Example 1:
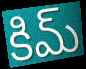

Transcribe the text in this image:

కిమ్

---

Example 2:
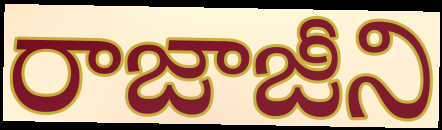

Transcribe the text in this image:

రాజాజీని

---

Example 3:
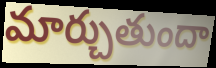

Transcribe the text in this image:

మార్చుతుందా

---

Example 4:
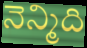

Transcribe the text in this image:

నెన్మిది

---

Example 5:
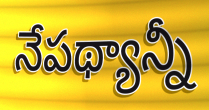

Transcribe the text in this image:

నేపథ్యాన్నీ